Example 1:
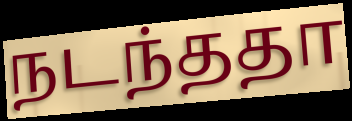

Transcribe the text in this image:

நடந்ததா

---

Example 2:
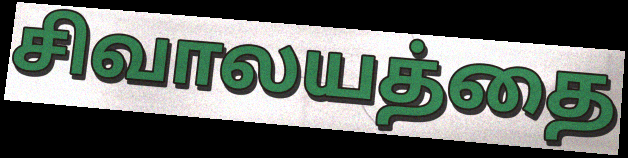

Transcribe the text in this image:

சிவாலயத்தை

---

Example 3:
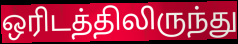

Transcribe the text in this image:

ஒரிடத்திலிருந்து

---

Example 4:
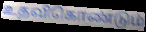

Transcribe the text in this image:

உதவிகொண்டும்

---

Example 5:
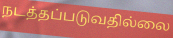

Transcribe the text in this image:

நடத்தப்படுவதில்லை